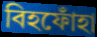
বিহফোঁহা